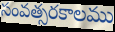
సంవత్సరకాలము